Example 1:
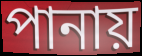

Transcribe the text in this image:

পানায়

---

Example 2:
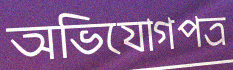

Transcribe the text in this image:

অভিযোগপত্র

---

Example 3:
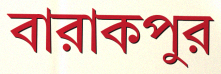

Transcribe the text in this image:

বারাকপুর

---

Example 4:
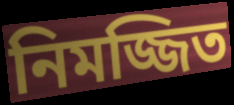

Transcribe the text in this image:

নিমজ্জিত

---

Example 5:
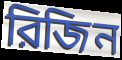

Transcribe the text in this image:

রিজিন